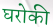
घरोकी